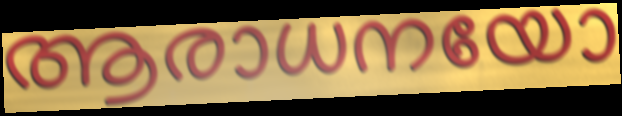
ആരാധനയോ